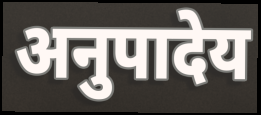
अनुपादेय